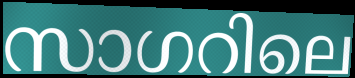
സാഗറിലെ